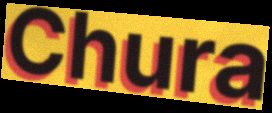
Chura